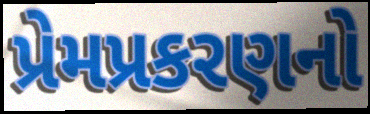
પ્રેમપ્રકરણનો